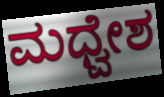
ಮಧ್ವೇಶ